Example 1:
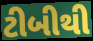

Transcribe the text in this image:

ટીબીથી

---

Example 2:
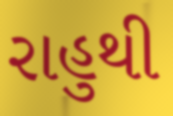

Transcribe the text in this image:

રાહુથી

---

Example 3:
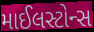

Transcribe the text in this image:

માઈલસ્ટોન્સ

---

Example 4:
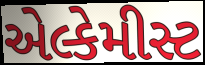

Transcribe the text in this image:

એલ્કેમીસ્ટ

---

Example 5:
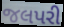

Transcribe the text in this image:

જલપરી